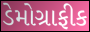
ડેમોગ્રાફીક